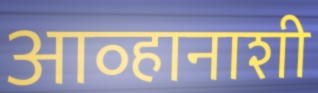
आव्हानाशी